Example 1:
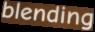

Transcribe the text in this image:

blending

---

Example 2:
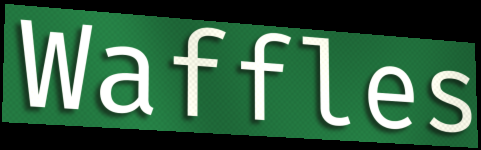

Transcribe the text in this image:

Waffles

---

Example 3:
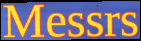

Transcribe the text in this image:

Messrs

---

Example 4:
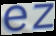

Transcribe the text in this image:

ez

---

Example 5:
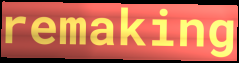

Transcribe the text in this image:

remaking